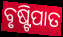
ବୃଷ୍ଟିପାତ